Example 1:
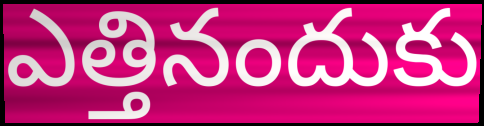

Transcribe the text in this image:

ఎత్తినందుకు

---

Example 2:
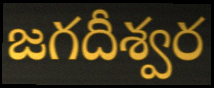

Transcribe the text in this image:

జగదీశ్వర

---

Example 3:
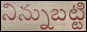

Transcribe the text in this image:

నిన్నుబట్టి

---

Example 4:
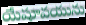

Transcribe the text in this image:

యేషూవయును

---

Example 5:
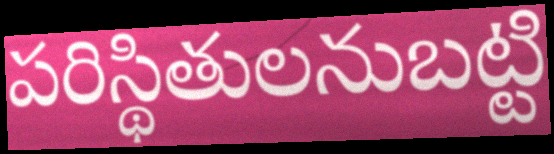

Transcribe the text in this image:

పరిస్థితులనుబట్టి